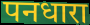
पनधारा